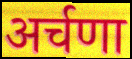
अर्चणा